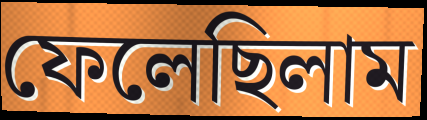
ফেলেছিলাম